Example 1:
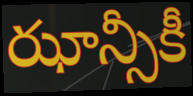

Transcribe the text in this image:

ఝాన్సీకీ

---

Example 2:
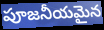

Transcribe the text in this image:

పూజనీయమైన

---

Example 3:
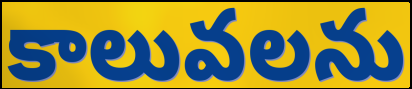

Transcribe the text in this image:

కాలువలను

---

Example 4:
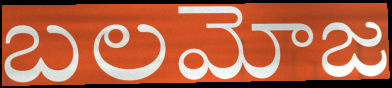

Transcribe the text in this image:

బలమోజ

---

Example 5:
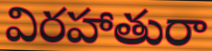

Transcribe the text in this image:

విరహాతురా